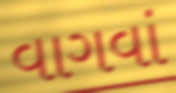
વાગવાં